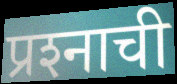
प्रश्‍नाची